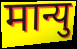
मान्यु